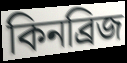
কিনব্রিজ